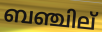
ബഞ്ചില്